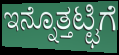
ಇನ್ನೊತ್ತಟ್ಟಿಗೆ